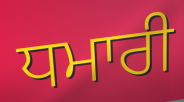
ਧਮਾਰੀ